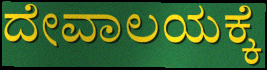
ದೇವಾಲಯಕ್ಕೆ